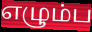
எழும்ப